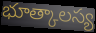
భూత్కాలస్య